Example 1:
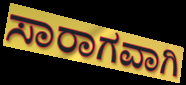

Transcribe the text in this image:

ಸಾರಾಗವಾಗಿ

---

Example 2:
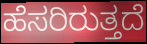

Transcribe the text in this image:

ಹೆಸರಿರುತ್ತದೆ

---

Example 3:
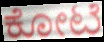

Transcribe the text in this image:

ಕೋಟೆ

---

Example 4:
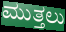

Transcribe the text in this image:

ಮುತ್ತಲು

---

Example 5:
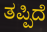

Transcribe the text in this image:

ತಪ್ಪಿದೆ